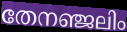
തേനഞ്ജലിം